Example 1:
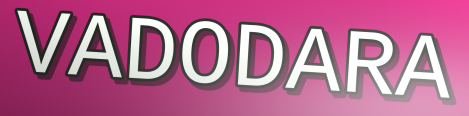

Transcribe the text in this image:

VADODARA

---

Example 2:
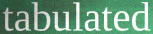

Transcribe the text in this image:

tabulated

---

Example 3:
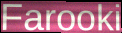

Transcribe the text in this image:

Farooki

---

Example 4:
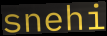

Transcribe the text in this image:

snehi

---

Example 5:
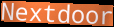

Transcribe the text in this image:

Nextdoor